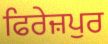
ਫਿਰੇਜ਼ਪੁਰ